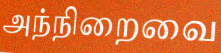
அந்நிறைவை